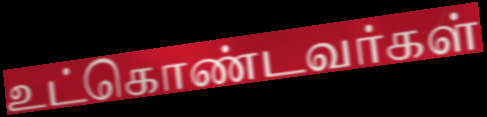
உட்கொண்டவர்கள்